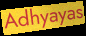
Adhyayas